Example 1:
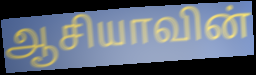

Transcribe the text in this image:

ஆசியாவின்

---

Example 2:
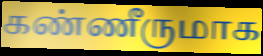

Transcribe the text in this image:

கண்ணீருமாக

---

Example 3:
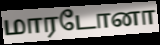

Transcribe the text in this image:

மாரடோனா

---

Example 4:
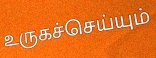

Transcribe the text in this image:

உருகச்செய்யும்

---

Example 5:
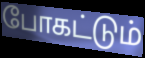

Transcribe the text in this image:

போகட்டும்